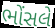
ભોંસલે